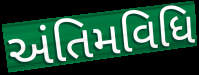
અંતિમવિધિ